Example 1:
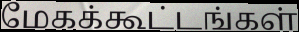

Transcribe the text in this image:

மேகக்கூட்டங்கள்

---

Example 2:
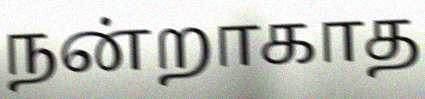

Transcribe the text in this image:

நன்றாகாத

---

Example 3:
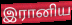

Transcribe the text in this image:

இரானிய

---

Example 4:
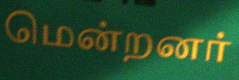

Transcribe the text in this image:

மென்றனர்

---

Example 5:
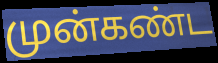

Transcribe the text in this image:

முன்கண்ட